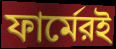
ফার্মেরই